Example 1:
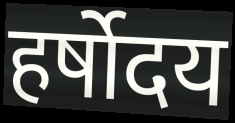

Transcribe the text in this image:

हर्षोदय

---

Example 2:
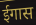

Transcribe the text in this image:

ईगास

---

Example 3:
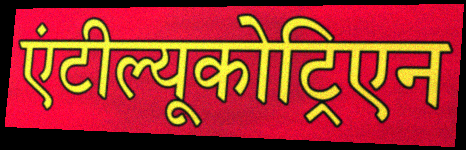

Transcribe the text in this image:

एंटील्यूकोट्रिएन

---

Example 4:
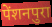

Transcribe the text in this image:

पेंशनपुरा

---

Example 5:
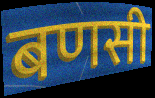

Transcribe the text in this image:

बणसी